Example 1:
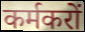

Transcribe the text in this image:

कर्मकरों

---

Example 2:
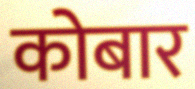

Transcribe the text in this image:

कोबार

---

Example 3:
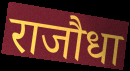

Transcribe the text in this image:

राजौधा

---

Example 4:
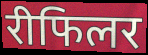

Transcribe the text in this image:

रीफिलर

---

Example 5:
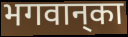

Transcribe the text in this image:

भगवान्‌का